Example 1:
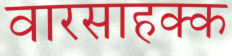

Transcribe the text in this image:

वारसाहक्क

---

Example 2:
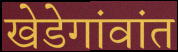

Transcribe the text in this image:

खेडेगांवांत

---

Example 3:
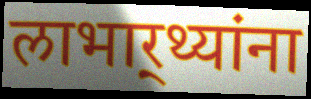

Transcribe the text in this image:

लाभार्थ्यांना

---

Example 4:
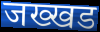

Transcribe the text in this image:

जख्खड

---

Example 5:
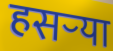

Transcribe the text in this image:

हसऱ्या